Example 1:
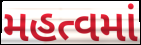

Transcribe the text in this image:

મહત્વમાં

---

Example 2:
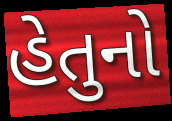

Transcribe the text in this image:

હેતુનો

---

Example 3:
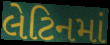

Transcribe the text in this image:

લેટિનમાં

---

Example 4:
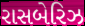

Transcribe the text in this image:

રાસબેરિઝ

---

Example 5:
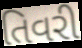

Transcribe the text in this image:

તિવરી